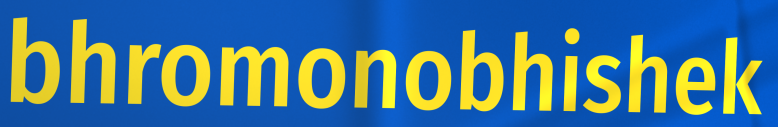
bhromonobhishek